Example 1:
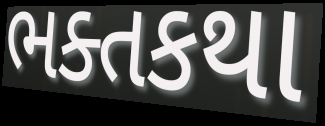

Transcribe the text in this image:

ભક્તકથા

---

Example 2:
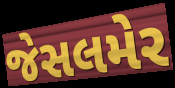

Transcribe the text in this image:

જેસલમેર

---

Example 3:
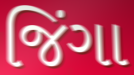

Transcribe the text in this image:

જિંગા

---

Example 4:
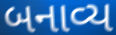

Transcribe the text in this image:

બનાવ્ય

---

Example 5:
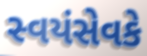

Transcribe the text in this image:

સ્વયંસેવકે